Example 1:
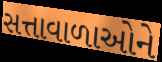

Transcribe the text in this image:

સત્તાવાળાઓને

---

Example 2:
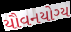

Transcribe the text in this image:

યૌવનયોગ્ય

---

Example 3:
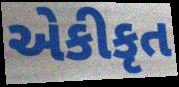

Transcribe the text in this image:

એકીકૃત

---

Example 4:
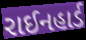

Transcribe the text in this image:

રાઈનહાર્ડ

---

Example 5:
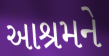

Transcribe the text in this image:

આશ્રમને